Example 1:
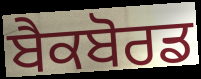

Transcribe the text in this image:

ਬੈਕਬੋਰਡ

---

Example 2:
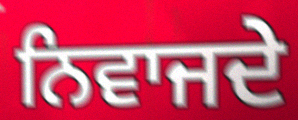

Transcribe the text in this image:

ਨਿਵਾਜਦੇ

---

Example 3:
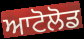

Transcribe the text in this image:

ਆਟੋਲੋਡ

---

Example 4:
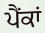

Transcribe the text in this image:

ਪੈਂਕਾਂ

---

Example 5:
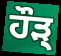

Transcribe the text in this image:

ਹੌੜ੍